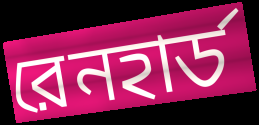
রেনহার্ড